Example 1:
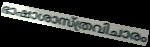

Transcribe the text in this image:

ഭാഷാശാസ്ത്രവിചാരം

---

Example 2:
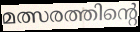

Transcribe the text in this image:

മത്സരത്തിന്റെ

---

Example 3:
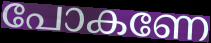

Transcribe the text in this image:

പോകണേ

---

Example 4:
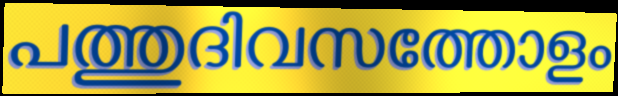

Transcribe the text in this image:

പത്തുദിവസത്തോളം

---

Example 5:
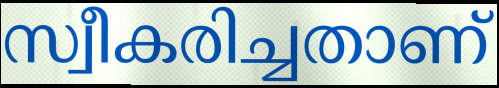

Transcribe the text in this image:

സ്വീകരിച്ചതാണ്